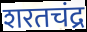
शरतचंद्र